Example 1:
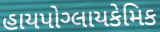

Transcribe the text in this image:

હાયપોગ્લાયકેમિક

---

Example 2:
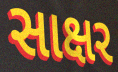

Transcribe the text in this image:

સાક્ષર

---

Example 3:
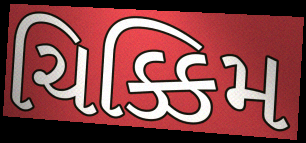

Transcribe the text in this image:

ચિક્કિમ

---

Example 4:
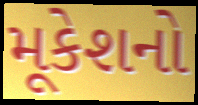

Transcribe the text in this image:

મૂકેશનો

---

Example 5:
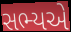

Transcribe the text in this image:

સભ્યએ